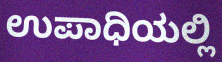
ಉಪಾಧಿಯಲ್ಲಿ